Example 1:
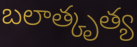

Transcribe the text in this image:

బలాత్కృత్య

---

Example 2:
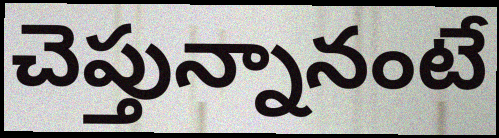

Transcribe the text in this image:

చెప్తున్నానంటే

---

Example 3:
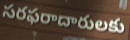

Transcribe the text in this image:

సరఫరాదారులకు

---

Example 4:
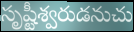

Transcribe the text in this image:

సృష్టీశ్వరుడనుచు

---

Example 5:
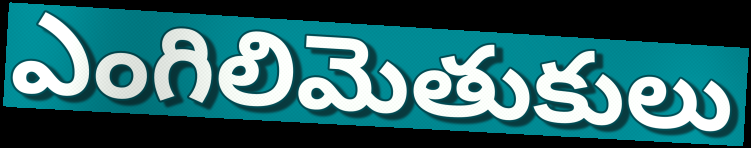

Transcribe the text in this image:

ఎంగిలిమెతుకులు